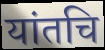
यांतचि